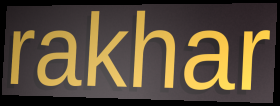
rakhar